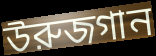
উরুজগান